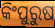
କିଂପୁରୁଷ